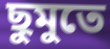
ছুমুতে